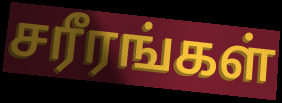
சரீரங்கள்